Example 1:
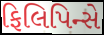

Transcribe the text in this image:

ફિલિપિન્સે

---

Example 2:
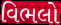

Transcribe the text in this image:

વિભલો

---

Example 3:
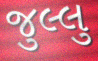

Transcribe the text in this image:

જુલ્લુ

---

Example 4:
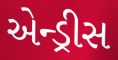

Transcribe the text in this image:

એન્ડ્રીસ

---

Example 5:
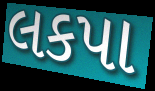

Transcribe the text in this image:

લકપા